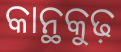
କାନ୍ଥକୁଢ଼